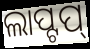
ଲାପ୍ଟପ୍